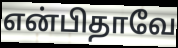
என்பிதாவே